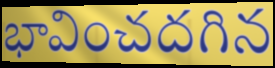
భావించదగిన